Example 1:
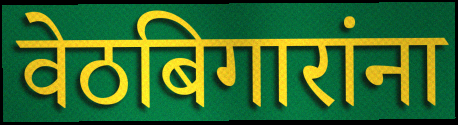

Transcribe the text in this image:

वेठबिगारांना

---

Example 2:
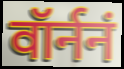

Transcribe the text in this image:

वॉर्ननं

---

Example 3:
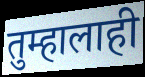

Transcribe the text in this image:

तुम्हालाही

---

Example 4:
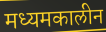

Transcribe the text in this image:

मध्यमकालीन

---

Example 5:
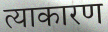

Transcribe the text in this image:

त्याकारण